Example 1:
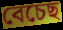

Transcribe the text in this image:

বেচেছ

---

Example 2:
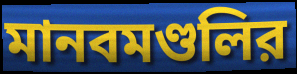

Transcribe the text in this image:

মানবমণ্ডলির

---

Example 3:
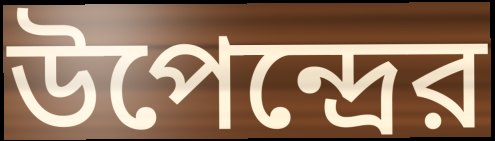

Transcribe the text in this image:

উপেন্দ্রের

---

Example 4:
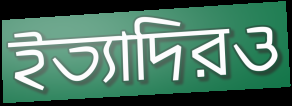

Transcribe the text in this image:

ইত্যাদিরও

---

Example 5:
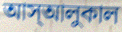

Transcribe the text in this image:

আস্আলুকাল